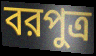
বরপুত্র